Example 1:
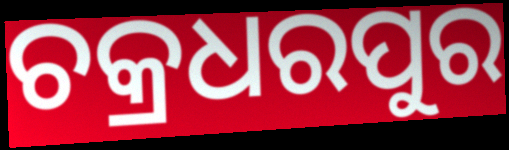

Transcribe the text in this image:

ଚକ୍ରଧରପୁର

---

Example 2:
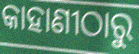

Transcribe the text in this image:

କାହାଣୀଠାରୁ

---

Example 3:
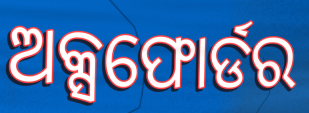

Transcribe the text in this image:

ଅକ୍ସଫୋର୍ଡର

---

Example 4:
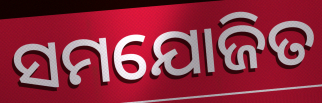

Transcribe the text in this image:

ସମଯୋଜିତ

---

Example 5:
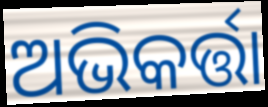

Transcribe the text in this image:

ଅଭିକର୍ତ୍ତା